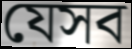
যেসব